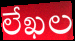
లేఖల